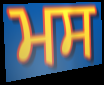
ਮਸ